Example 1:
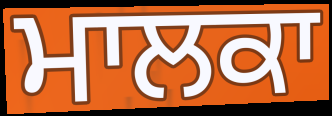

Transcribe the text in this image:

ਮਾਲਕਾ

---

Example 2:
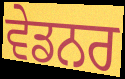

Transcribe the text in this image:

ਵੇਡਨਰ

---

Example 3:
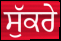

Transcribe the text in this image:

ਸੁੱਕਰੇ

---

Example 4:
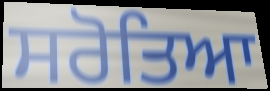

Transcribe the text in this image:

ਸਰੋਤਿਆ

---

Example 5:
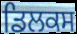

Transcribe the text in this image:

ਡਿਲਕਸ